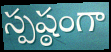
స్పష్ఠంగా